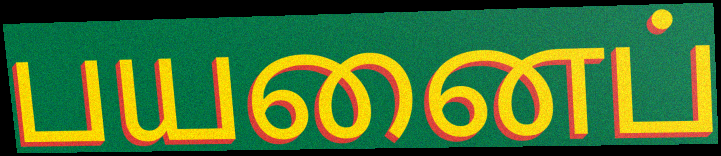
பயனைப்